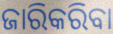
ଜାରିକରିବା